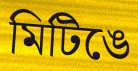
মিটিঙে